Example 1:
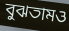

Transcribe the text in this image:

বুঝতামও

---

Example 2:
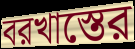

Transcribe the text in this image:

বরখাস্তের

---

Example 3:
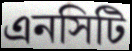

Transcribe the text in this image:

এনসিটি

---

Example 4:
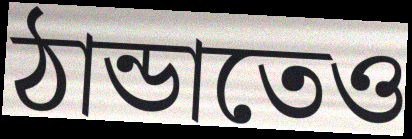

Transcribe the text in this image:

ঠান্ডাতেও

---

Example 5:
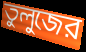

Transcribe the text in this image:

তুলুজের